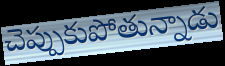
చెప్పుకుపోతున్నాడు